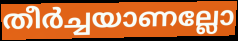
തീർച്ചയാണല്ലോ